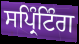
ਸਪ੍ਰਿੰਟਿੰਗ